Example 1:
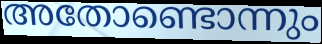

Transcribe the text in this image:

അതോണ്ടൊന്നും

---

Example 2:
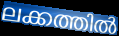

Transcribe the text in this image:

ലക്കത്തിൽ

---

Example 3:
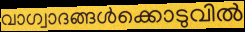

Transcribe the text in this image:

വാഗ്വാദങ്ങൾക്കൊടുവിൽ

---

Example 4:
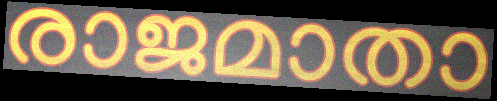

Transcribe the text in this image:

രാജമാതാ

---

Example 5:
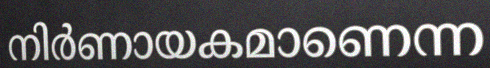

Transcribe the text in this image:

നിർണായകമാണെന്ന